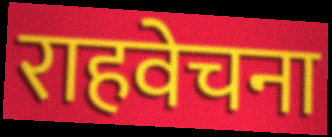
राहवेचना